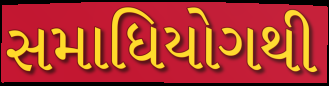
સમાધિયોગથી